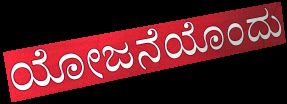
ಯೋಜನೆಯೊಂದು